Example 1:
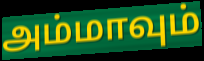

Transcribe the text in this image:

அம்மாவும்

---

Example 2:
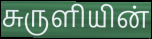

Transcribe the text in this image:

சுருளியின்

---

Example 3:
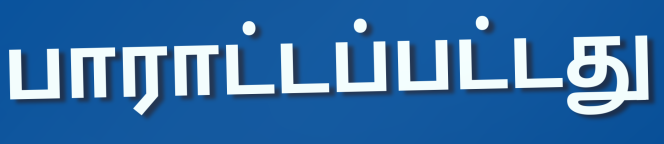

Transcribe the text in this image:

பாராட்டப்பட்டது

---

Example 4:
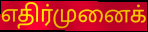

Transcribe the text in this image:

எதிர்முனைக்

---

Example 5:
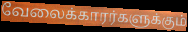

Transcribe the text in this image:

வேலைக்காரர்களுக்கும்